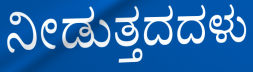
ನೀಡುತ್ತದದಳು